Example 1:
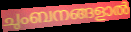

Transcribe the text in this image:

ചുംബനങ്ങളാൽ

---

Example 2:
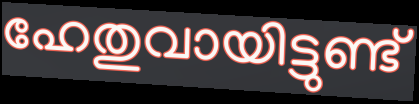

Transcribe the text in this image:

ഹേതുവായിട്ടുണ്ട്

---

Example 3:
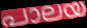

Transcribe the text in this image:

പാലയ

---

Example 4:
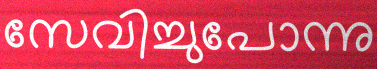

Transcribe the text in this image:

സേവിച്ചുപോന്നു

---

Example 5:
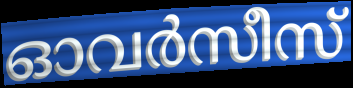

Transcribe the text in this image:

ഓവർസീസ്